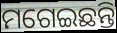
ମଗେଇଛନ୍ତି